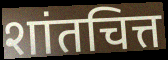
शांतचित्त